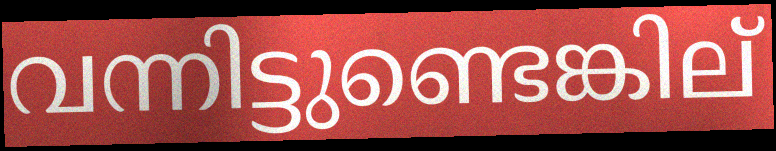
വന്നിട്ടുണ്ടെങ്കില്